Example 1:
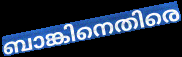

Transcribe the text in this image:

ബാങ്കിനെതിരെ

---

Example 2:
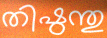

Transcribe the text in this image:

തിഷ്ഠന്തു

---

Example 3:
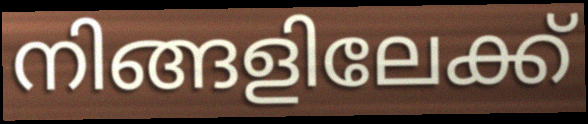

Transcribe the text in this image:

നിങ്ങളിലേക്ക്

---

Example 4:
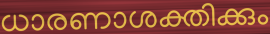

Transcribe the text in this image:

ധാരണാശക്തിക്കും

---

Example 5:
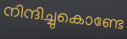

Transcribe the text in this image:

നിന്ദിച്ചുകൊണ്ടേ